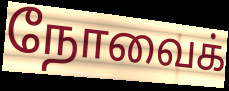
நோவைக்